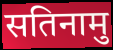
सतिनामु